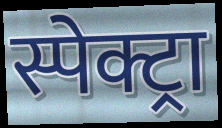
स्पेक्ट्रा